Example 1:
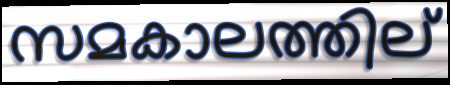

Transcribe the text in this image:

സമകാലത്തില്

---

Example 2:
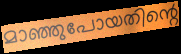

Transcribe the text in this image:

മാഞ്ഞുപോയതിന്റെ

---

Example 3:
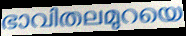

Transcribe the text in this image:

ഭാവിതലമുറയെ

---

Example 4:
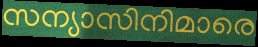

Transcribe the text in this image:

സന്യാസിനിമാരെ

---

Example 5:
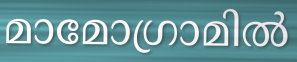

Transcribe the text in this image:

മാമോഗ്രാമിൽ